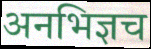
अनभिज्ञच